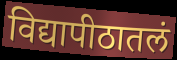
विद्यापीठातलं